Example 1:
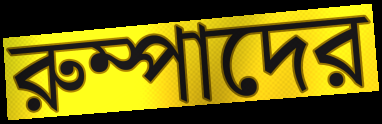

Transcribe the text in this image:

রুম্পাদের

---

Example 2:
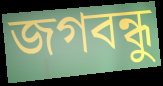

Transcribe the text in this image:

জগবন্ধু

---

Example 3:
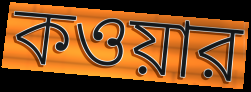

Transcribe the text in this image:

কওয়ার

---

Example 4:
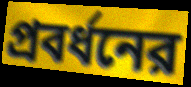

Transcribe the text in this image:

প্রবর্ধনের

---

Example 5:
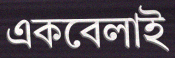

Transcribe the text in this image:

একবেলাই